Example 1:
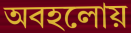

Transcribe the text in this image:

অবহলোয়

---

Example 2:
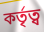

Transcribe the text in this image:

কর্তৃত্ব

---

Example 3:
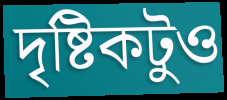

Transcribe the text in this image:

দৃষ্টিকটুও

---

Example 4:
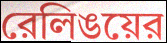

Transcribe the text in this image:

রেলিঙয়ের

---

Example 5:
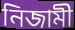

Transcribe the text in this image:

নিজামী